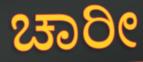
ಚಾರೀ